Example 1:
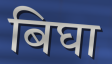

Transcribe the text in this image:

बिघा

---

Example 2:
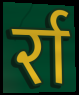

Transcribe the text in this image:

र्रा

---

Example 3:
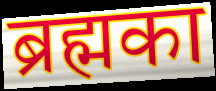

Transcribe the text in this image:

ब्रह्मका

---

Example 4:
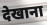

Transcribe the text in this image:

देखाना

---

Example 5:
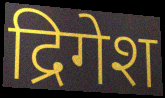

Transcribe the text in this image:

द्रिगेश